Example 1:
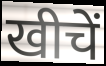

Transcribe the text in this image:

खीचें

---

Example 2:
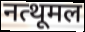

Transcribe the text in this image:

नत्थूमल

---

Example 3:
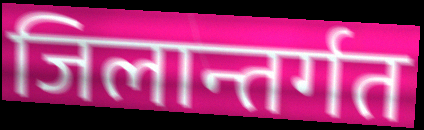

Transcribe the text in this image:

जिलान्तर्गत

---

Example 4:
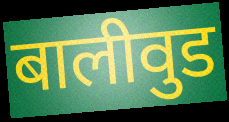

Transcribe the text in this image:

बालीवुड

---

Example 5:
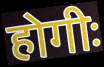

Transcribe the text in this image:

होगीः